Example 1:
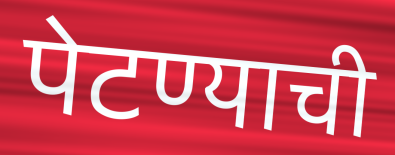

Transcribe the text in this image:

पेटण्याची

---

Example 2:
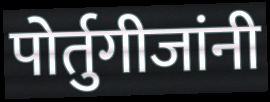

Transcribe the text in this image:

पोर्तुगीजांनी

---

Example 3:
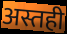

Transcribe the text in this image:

अस्तही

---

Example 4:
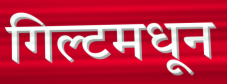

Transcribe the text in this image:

गिल्टमधून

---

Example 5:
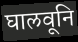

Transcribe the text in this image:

घालवूनि